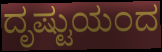
ದೃಷ್ಟುಯಂದ